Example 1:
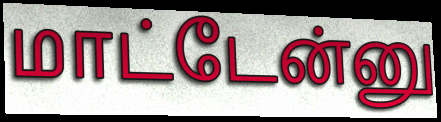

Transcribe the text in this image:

மாட்டேன்னு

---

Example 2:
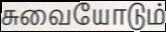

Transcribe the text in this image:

சுவையோடும்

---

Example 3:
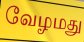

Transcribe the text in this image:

வேழமது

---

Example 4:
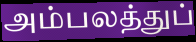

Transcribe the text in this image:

அம்பலத்துப்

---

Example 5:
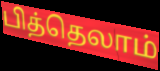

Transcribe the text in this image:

பித்தெலாம்